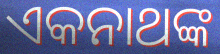
ଏକନାଥଙ୍କ